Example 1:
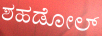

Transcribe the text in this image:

ಶಹಡೋಲ್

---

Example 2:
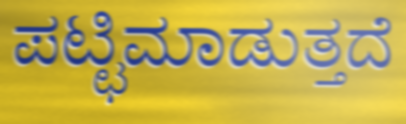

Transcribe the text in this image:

ಪಟ್ಟಿಮಾಡುತ್ತದೆ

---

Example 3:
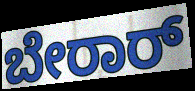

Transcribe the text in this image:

ಬೇರಾರ್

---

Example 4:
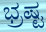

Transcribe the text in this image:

ಭ್ರಷ್ಟ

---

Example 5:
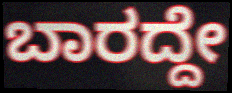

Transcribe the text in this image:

ಬಾರದ್ದೇ